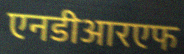
एनडीआरएफ